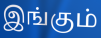
இங்கும்